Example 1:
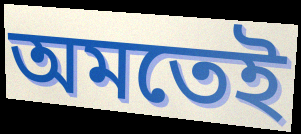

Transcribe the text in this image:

অমতেই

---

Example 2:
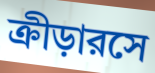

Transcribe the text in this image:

ক্রীড়ারসে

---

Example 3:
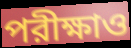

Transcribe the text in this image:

পরীক্ষাও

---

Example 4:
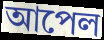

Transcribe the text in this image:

আপেল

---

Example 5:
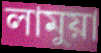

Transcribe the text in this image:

লামুয়া